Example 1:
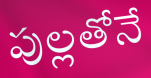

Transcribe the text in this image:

పుల్లతోనే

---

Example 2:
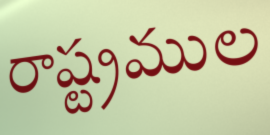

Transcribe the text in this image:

రాష్ట్రముల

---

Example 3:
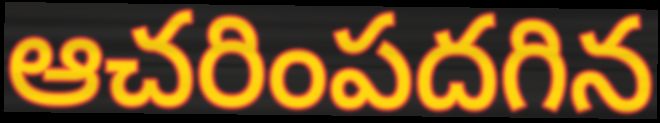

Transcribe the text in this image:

ఆచరింపదగిన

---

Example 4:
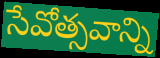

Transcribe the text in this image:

సేవోత్సవాన్ని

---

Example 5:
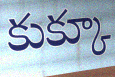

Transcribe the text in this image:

కుక్కూ